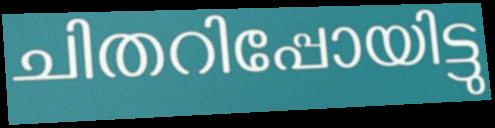
ചിതറിപ്പോയിട്ടു